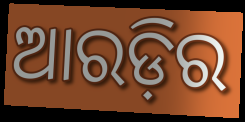
ଆରଡ଼ିର